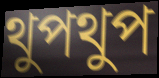
থুপথুপ